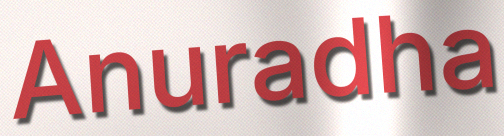
Anuradha